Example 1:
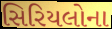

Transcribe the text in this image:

સિરિયલોના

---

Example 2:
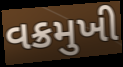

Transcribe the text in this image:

વક્રમુખી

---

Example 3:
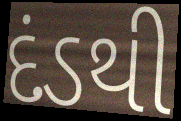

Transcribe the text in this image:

દંડથી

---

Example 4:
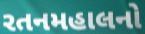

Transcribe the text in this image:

રતનમહાલનો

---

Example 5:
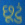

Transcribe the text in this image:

છૂટું